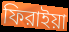
ফিরাইয়া